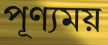
পূণ্যময়